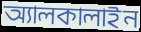
অ্যালকালাইন